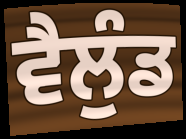
ਵੈਲੁੰਡ